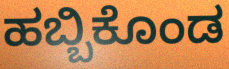
ಹಬ್ಬಿಕೊಂಡ